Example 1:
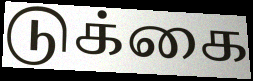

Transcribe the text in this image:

டுக்கை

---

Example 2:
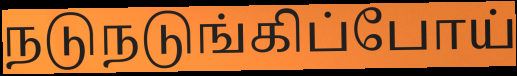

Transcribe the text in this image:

நடுநடுங்கிப்போய்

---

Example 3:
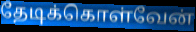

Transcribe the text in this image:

தேடிக்கொள்வேன்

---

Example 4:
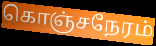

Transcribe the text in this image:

கொஞ்சநேரம்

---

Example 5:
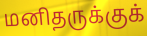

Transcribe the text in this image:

மனிதருக்குக்